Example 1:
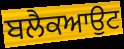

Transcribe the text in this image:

ਬਲੈਕਆਉਟ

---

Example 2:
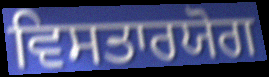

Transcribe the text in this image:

ਵਿਸਤਾਰਯੋਗ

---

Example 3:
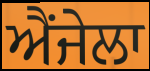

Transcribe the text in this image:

ਐਂਜੇਲਾ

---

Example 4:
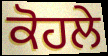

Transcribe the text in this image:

ਕੋਹਲੇ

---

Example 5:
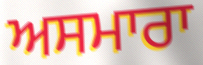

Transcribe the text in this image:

ਅਸਮਾਰਾ